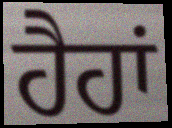
ਹੈਹਾਂ